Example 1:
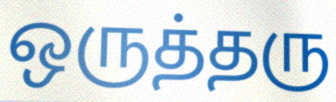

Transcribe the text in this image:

ஒருத்தரு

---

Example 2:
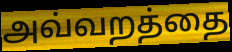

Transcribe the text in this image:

அவ்வறத்தை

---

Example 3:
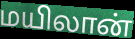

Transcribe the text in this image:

மயிலான்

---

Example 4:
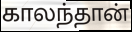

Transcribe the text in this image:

காலந்தான்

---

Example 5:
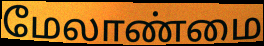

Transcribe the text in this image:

மேலாண்மை